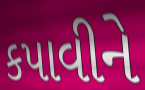
કપાવીને